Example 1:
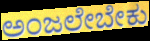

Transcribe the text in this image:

ಅಂಜಲೇಬೇಕು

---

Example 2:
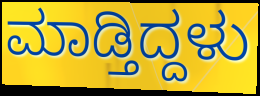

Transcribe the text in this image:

ಮಾಡ್ತಿದ್ದಳು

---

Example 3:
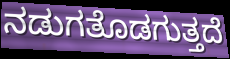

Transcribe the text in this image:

ನಡುಗತೊಡಗುತ್ತದೆ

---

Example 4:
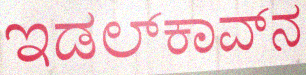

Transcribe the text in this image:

ಇಡಲ್‌ಕಾವ್‌ನ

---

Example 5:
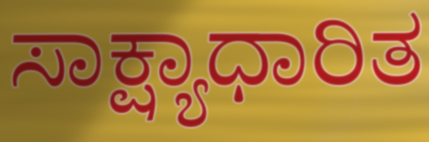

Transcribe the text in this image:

ಸಾಕ್ಷ್ಯಾಧಾರಿತ